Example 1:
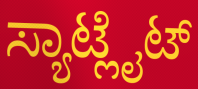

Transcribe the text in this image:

ಸ್ಯಾಟ್ಲೈಟ್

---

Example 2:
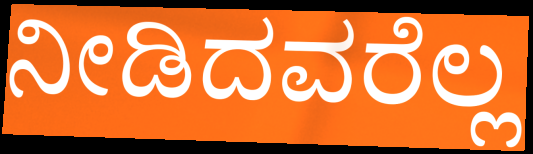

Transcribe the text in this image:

ನೀಡಿದವರೆಲ್ಲ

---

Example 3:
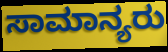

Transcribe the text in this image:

ಸಾಮಾನ್ಯರು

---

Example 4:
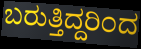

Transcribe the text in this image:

ಬರುತ್ತಿದ್ದರಿಂದ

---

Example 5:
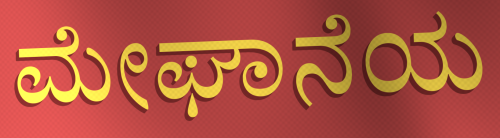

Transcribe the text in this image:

ಮೇಘಾನೆಯ